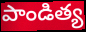
పాండిత్య